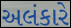
અલંકારે